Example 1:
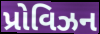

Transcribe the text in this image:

પ્રોવિઝન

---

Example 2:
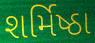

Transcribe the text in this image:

શર્મિષ્ઠા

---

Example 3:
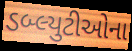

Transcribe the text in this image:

ડબ્લ્યુટીઓના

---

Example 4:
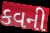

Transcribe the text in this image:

કવની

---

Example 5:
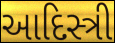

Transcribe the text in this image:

આદિસ્ત્રી